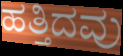
ಹತ್ತಿದವು